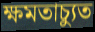
ক্ষমতাচ্যুত